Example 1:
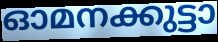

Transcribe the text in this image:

ഓമനക്കുട്ടാ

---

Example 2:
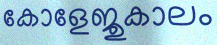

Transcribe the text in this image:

കോളേജുകാലം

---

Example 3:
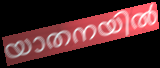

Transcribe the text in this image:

യാതനയിൽ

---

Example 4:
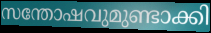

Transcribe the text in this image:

സന്തോഷവുമുണ്ടാക്കി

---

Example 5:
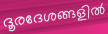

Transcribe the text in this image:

ദൂരദേശങ്ങളിൽ